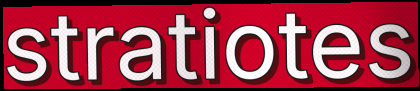
stratiotes